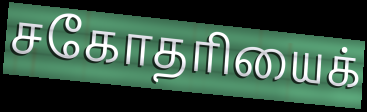
சகோதரியைக்